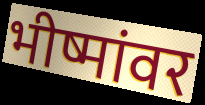
भीष्मांवर